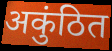
अकुंठित